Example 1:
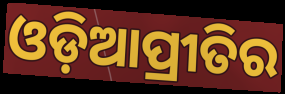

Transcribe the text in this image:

ଓଡ଼ିଆପ୍ରୀତିର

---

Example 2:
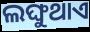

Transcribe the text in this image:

ଲଙ୍ଘୁଥାଏ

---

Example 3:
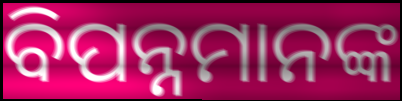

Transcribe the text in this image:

ବିପନ୍ନମାନଙ୍କ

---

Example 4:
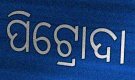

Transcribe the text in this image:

ପିଟ୍ରୋଦା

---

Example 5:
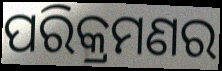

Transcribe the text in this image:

ପରିକ୍ରମଣର